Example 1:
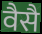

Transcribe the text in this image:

वैसै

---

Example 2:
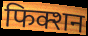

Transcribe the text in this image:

फिक्शन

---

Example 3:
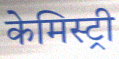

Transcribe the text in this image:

केमिस्ट्री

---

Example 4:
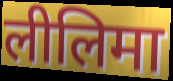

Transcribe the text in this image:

लीलिमा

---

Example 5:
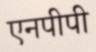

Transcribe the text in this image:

एनपीपी